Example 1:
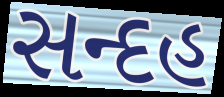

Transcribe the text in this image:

સન્દહ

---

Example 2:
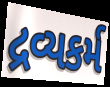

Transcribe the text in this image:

દ્રવ્યકર્મ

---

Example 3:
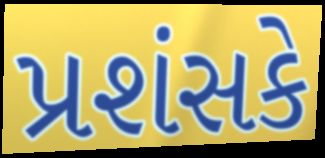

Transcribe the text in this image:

પ્રશંસકે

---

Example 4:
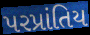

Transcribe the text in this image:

પરપ્રાંતિય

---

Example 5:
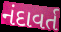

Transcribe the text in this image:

નંદાવર્ત